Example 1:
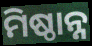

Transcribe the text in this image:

ମିଷ୍ଠାନ୍ନ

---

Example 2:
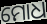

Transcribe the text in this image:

ମୋଧ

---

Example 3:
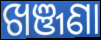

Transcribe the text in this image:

ଖଞ୍ଜଣା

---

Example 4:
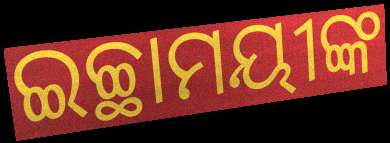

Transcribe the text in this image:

ଇଚ୍ଛାମୟୀଙ୍କ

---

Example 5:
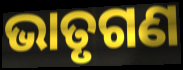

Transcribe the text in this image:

ଭାତୃଗଣ